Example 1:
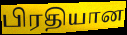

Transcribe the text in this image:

பிரதியான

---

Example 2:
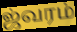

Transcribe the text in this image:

ஜ்வரம்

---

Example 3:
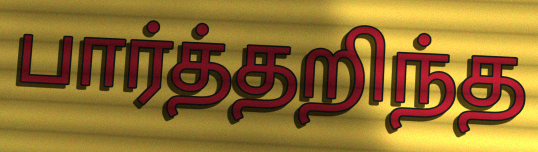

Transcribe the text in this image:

பார்த்தறிந்த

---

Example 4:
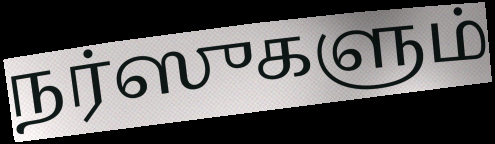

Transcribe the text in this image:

நர்ஸுகளும்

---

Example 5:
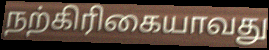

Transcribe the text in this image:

நற்கிரிகையாவது